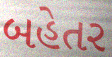
બહેતર